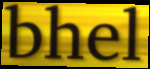
bhel